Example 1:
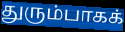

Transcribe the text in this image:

துரும்பாகக்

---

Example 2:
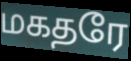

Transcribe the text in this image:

மகதரே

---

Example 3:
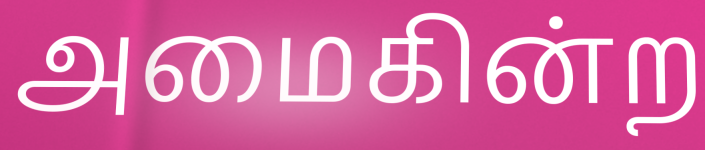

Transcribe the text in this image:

அமைகின்ற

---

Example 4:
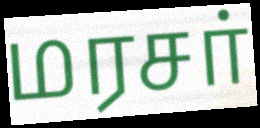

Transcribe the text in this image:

மரசர்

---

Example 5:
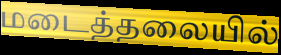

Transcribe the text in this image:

மடைத்தலையில்